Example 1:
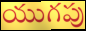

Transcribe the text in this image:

యుగపు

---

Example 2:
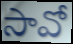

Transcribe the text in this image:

సావో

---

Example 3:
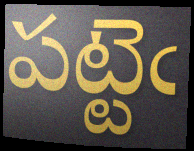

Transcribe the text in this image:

పట్టెఁ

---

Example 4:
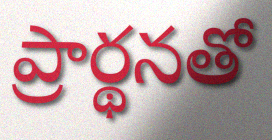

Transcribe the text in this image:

ప్రార్థనతో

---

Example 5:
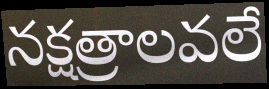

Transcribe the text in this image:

నక్షత్రాలవలే